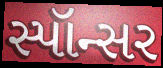
સ્પૉન્સર